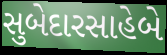
સુબેદારસાહેબે